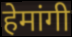
हेमांगी